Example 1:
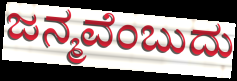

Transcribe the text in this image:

ಜನ್ಮವೆಂಬುದು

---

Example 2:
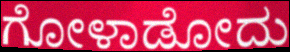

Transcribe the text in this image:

ಗೋಳಾಡೋದು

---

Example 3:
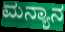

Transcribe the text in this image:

ಮನ್ಯಾನ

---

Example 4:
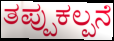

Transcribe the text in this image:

ತಪ್ಪುಕಲ್ಪನೆ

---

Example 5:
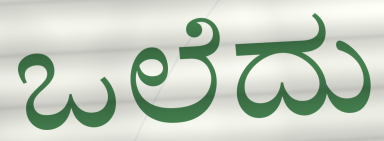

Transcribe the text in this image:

ಒಲೆದು